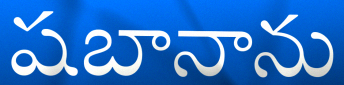
షబానాను